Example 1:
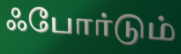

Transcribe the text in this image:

ஃபோர்டும்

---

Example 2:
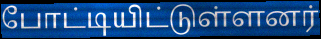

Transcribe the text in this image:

போட்டியிட்டுள்ளனர்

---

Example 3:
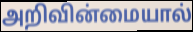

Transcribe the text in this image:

அறிவின்மையால்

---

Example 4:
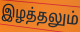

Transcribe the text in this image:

இழத்தலும்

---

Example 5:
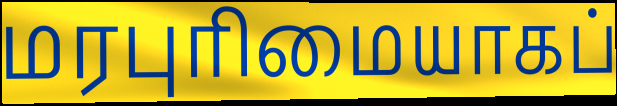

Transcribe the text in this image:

மரபுரிமையாகப்